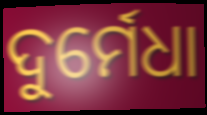
ଦୁର୍ମେଧା